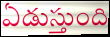
ఏడుస్తుంది